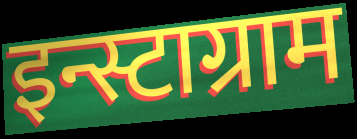
इन्स्टाग्राम